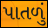
પાતળું